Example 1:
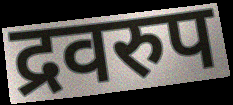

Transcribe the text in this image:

द्रवरुप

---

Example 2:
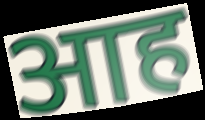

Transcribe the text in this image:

आह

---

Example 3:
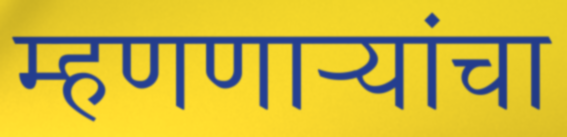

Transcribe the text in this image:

म्हणणाऱ्यांचा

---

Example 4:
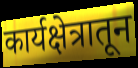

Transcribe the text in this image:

कार्यक्षेत्रातून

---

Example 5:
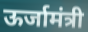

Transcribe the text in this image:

ऊर्जामंत्री